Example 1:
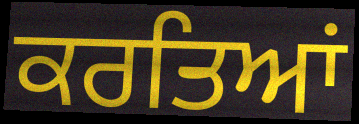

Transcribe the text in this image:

ਕਰਤਿਆਂ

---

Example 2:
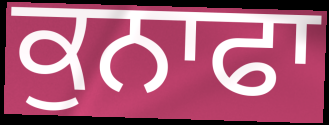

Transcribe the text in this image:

ਕੁਨਾਫਾ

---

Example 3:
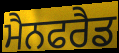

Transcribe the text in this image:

ਮੈਨਫਰੈਡ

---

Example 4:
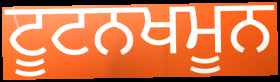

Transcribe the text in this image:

ਟੂਟਨਖਮੂਨ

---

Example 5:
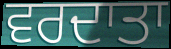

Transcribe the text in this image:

ਵਰਦਾਤਾ